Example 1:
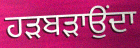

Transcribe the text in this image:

ਹੜਬੜਾਉਂਦਾ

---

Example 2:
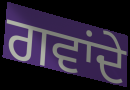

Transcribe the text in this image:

ਗਵਾਂਦੇ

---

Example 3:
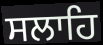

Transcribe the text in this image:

ਸਲਾਹਿ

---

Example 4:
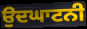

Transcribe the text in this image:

ਉਦਘਾਟਨੀ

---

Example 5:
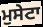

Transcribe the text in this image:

ਮੁਸੇਟਾ